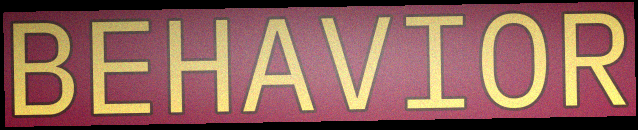
BEHAVIOR